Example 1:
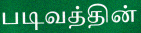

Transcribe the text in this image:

படிவத்தின்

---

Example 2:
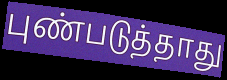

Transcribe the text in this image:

புண்படுத்தாது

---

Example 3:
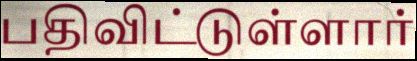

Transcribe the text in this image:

பதிவிட்டுள்ளார்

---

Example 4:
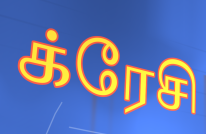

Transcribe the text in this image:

க்ரேசி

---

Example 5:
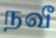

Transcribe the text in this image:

நவீ